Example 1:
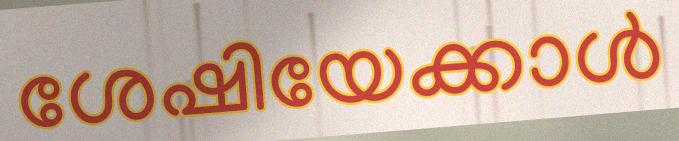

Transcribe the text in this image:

ശേഷിയേക്കാൾ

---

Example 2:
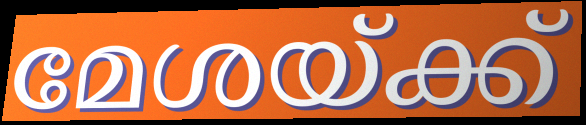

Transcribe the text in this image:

മേശയ്ക്ക്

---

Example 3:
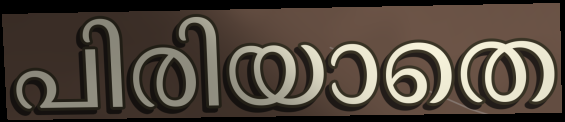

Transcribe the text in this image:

പിരിയാതെ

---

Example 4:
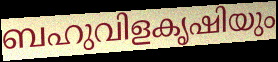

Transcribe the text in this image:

ബഹുവിളകൃഷിയും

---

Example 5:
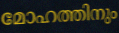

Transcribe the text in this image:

മോഹത്തിനും